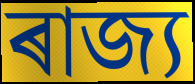
ৰাজ্য